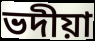
ভদীয়া